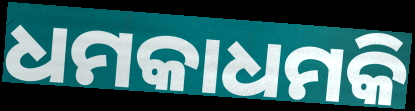
ଧମକାଧମକି